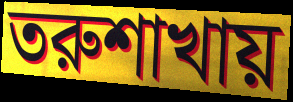
তরুশাখায়